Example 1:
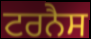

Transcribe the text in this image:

ਟਰਨੈਸ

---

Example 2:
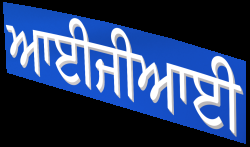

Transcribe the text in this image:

ਆਈਜੀਆਈ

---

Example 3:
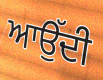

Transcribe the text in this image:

ਆਉੱਦੀ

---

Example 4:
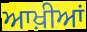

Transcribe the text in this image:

ਆਖ਼ੀਆਂ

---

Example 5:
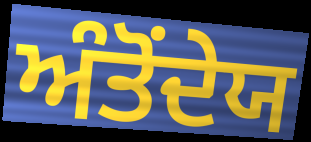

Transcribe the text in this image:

ਅੰਤੋਂਦੇਯ